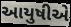
આયુષીએ